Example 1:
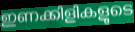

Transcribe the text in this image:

ഇണക്കിളികളുടെ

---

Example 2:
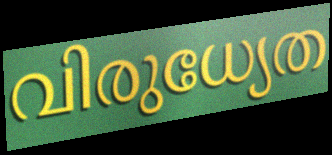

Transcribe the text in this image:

വിരുധ്യേത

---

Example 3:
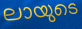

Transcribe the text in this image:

ലായുടെ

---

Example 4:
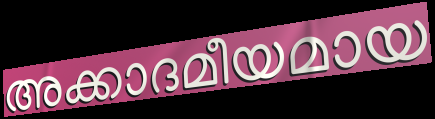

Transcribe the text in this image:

അക്കാദമീയമായ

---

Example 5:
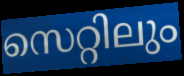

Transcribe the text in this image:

സെറ്റിലും